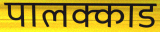
पालक्काड